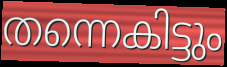
തന്നെകിട്ടും